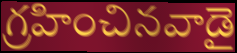
గ్రహించినవాడై